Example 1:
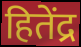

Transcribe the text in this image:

हितेंद्र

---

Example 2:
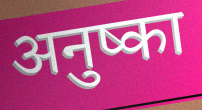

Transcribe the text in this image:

अनुष्का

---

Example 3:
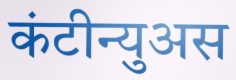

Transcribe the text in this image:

कंटीन्युअस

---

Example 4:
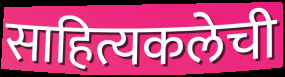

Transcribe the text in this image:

साहित्यकलेची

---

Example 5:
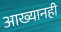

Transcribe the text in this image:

आख्यानही